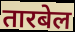
तारबेल